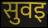
सुवइ